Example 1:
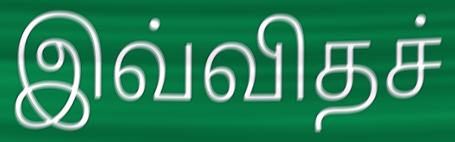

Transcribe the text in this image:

இவ்விதச்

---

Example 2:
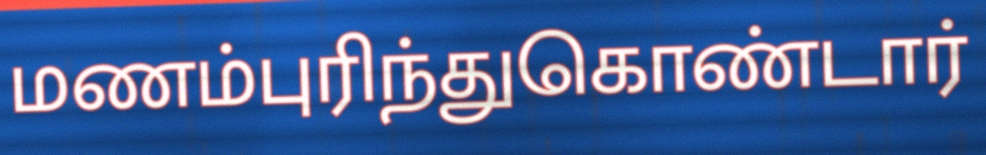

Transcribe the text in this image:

மணம்புரிந்துகொண்டார்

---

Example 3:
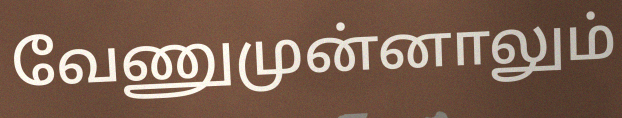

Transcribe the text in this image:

வேணுமுன்னாலும்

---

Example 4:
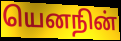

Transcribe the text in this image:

யெனநின்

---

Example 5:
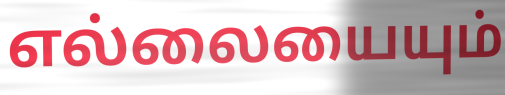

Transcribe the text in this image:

எல்லையையும்